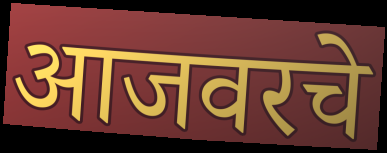
आजवरचे